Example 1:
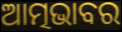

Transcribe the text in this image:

ଆତ୍ମଭାବର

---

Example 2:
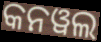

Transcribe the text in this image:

କନୱଲ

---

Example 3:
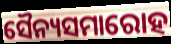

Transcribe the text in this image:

ସୈନ୍ୟସମାରୋହ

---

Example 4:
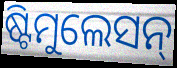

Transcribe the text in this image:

ଷ୍ଟିମୁଲେସନ୍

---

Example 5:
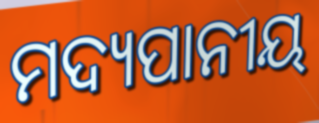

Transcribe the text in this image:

ମଦ୍ୟପାନୀୟ